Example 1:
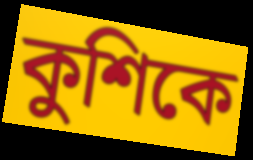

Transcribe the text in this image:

কুশিকে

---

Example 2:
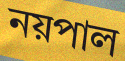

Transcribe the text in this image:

নয়পাল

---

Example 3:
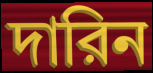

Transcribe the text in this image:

দারিন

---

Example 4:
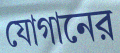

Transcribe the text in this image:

যোগানের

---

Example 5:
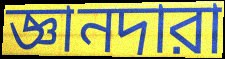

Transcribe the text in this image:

জ্ঞানদারা